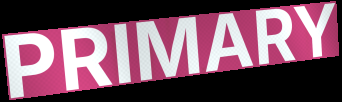
PRIMARY